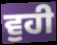
ਵੁਹੀ